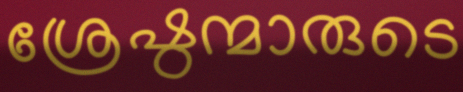
ശ്രേഷ്ഠന്മാരുടെ